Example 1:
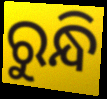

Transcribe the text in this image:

ରୁନ୍ଧି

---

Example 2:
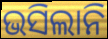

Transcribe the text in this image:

ଭସିଲାନି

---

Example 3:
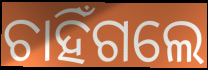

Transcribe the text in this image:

ଚାହିଁଗଲେ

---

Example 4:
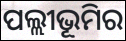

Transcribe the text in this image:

ପଲ୍ଲୀଭୂମିର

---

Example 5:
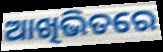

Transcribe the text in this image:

ଆଖିଭିତରେ